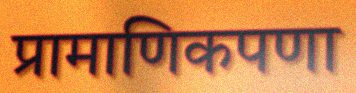
प्रामाणिकपणा